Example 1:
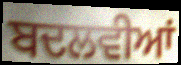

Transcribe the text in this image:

ਬਦਲਵੀਆਂ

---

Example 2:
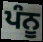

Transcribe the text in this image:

ਪੰਨੂ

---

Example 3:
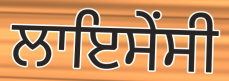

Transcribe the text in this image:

ਲਾਇਸੇਂਸੀ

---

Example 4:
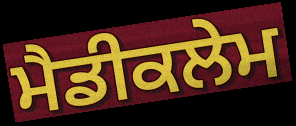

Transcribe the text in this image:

ਮੈਡੀਕਲੇਮ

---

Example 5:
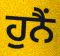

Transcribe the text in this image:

ਹੁਨੈਂ